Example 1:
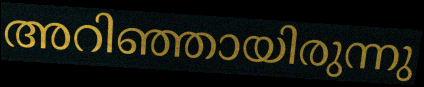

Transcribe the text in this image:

അറിഞ്ഞായിരുന്നു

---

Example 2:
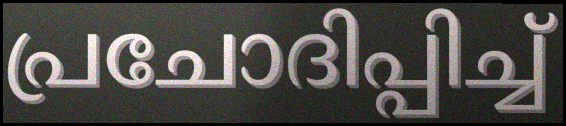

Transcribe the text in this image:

പ്രചോദിപ്പിച്ച്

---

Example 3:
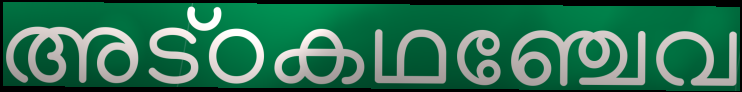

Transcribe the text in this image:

അട്ഠകഥഞ്ചേവ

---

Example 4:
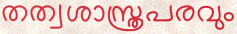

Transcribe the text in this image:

തത്വശാസ്ത്രപരവും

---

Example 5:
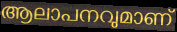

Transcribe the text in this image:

ആലാപനവുമാണ്